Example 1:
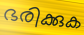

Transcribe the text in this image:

ഭരിക്കുക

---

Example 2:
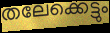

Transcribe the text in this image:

തലേക്കെട്ടും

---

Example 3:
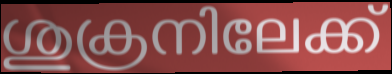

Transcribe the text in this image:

ശുക്രനിലേക്ക്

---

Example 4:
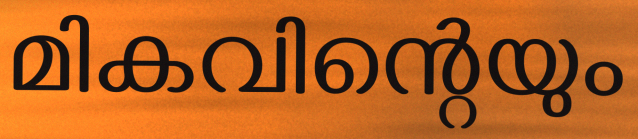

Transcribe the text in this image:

മികവിന്റെയും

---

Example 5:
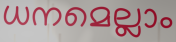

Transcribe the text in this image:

ധനമെല്ലാം